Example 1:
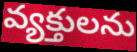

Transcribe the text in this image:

వ్యక్తులను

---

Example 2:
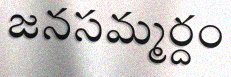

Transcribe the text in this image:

జనసమ్మర్దం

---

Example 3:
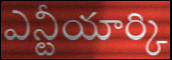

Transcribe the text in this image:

ఎన్టీయార్కి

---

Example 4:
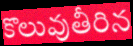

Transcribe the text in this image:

కొలువుతీరిన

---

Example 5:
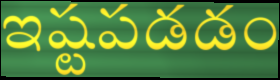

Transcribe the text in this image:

ఇష్టపడడం